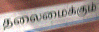
தலைமைக்கும்